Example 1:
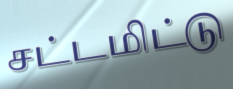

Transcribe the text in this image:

சட்டமிட்டு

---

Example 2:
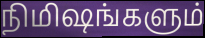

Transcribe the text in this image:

நிமிஷங்களும்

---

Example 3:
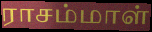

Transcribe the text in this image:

ராசம்மாள்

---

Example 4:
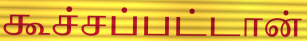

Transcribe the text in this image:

கூச்சப்பட்டான்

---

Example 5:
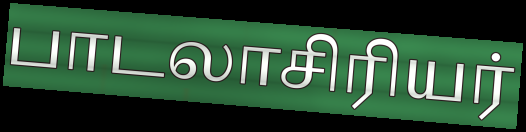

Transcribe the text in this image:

பாடலாசிரியர்